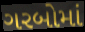
ગરબોમાં